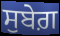
ਸੁਬੇਗ਼